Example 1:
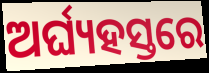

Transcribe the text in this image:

ଅର୍ଘ୍ୟହସ୍ତରେ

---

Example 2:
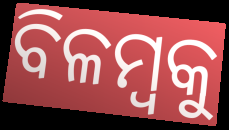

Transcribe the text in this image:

ବିଳମ୍ୱକୁ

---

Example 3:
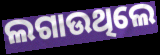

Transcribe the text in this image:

ଲଗାଉଥିଲେ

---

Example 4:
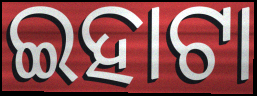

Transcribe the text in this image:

ଇହାଟା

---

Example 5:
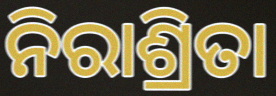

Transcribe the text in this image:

ନିରାଶ୍ରିତା